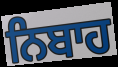
ਨਿਬਾਹ